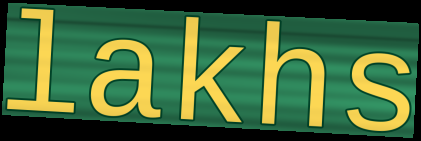
lakhs